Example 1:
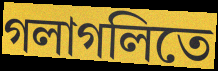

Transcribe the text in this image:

গলাগলিতে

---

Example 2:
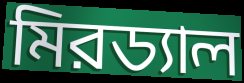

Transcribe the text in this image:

মিরড্যাল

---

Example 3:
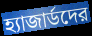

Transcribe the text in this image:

হ্যাজার্ডদের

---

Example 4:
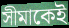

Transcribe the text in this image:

সীমাকেই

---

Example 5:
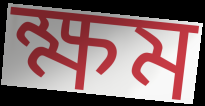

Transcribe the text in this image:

ক্ষম